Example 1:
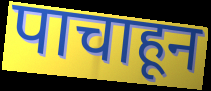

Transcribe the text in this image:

पाचाहून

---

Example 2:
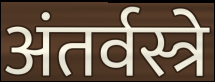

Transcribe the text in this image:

अंतर्वस्त्रे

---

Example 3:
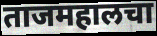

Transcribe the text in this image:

ताजमहालचा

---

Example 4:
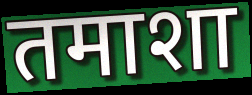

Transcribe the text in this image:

तमाशा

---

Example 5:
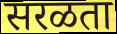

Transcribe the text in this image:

सरळता